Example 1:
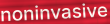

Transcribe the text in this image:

noninvasive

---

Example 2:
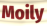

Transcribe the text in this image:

Moily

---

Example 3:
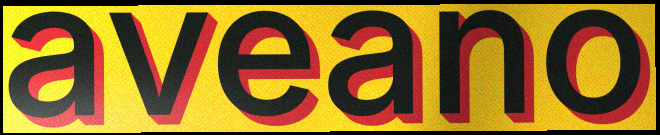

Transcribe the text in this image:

aveano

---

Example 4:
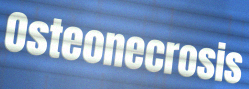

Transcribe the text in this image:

Osteonecrosis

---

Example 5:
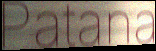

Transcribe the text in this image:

Patana